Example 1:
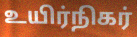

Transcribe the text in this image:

உயிர்நிகர்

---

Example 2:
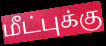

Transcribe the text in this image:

மீட்புக்கு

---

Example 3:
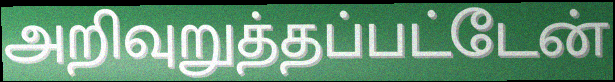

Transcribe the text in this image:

அறிவுறுத்தப்பட்டேன்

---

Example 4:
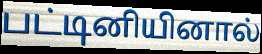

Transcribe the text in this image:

பட்டினியினால்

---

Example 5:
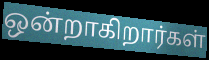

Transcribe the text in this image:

ஒன்றாகிறார்கள்